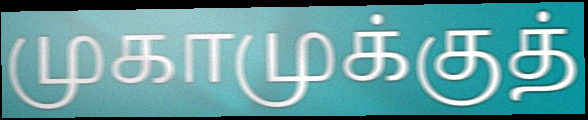
முகாமுக்குத்